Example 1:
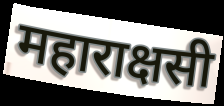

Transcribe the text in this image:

महाराक्षसी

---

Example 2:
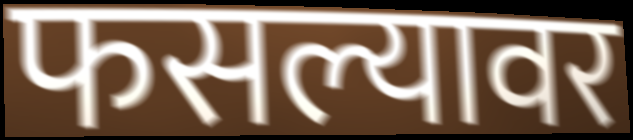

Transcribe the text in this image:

फसल्यावर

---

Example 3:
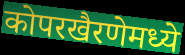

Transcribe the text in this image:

कोपरखैरणेमध्ये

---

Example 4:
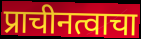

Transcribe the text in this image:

प्राचीनत्वाचा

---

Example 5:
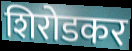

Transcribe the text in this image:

शिरोडकर